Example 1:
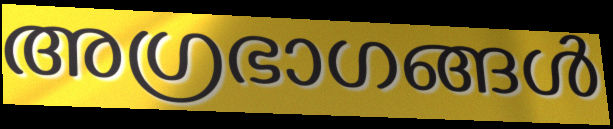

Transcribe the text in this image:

അഗ്രഭാഗങ്ങൾ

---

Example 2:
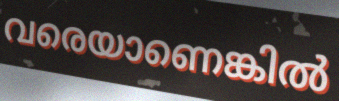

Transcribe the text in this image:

വരെയാണെങ്കിൽ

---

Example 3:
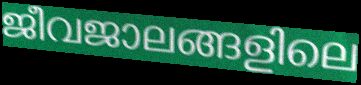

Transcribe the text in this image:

ജീവജാലങ്ങളിലെ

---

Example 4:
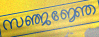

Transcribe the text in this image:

സഞ്ജജ്ഞേ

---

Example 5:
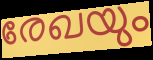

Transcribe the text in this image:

രേഖയും